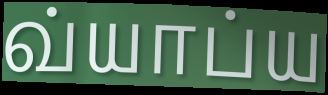
வ்யாப்ய